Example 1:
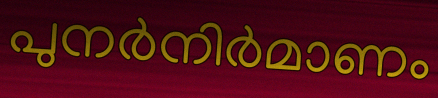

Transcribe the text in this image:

പുനർനിർമാണം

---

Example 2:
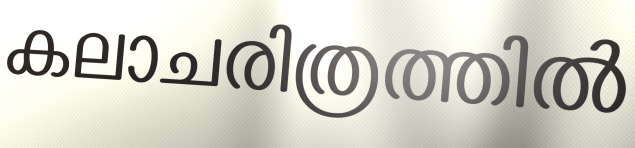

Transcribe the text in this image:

കലാചരിത്രത്തിൽ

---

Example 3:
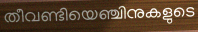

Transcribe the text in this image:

തീവണ്ടിയെഞ്ചിനുകളുടെ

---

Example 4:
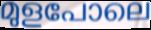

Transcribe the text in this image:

മുളപോലെ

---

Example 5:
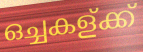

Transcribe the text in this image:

ഒച്ചകള്ക്ക്